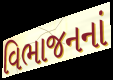
વિભાજનનાં